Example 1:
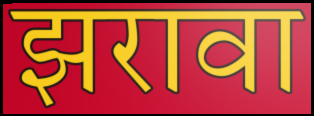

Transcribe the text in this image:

झरावा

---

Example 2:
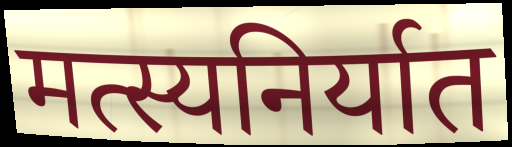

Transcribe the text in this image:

मत्स्यनिर्यात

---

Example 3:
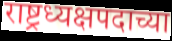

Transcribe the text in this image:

राष्ट्रध्यक्षपदाच्या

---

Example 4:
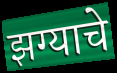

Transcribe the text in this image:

झग्याचे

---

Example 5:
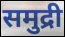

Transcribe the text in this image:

समुद्री